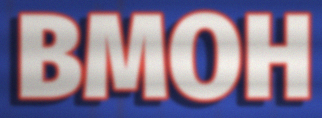
BMOH